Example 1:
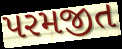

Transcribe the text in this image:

પરમજીત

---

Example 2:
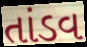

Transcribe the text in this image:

તાંડવ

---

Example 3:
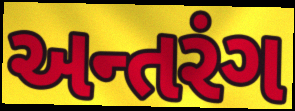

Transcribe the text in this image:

અન્તરંગ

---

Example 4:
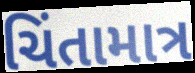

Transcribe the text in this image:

ચિંતામાત્ર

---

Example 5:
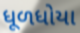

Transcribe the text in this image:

ધૂળધોયા